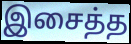
இசைத்த